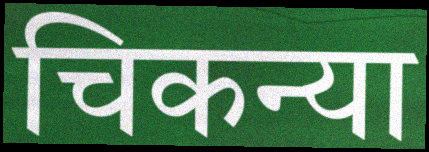
चिकन्या